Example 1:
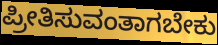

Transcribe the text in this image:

ಪ್ರೀತಿಸುವಂತಾಗಬೇಕು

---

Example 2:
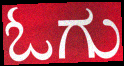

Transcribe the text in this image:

ಓಗು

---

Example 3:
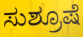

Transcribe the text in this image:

ಸುಶ್ರೂಷೆ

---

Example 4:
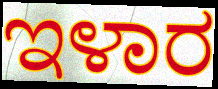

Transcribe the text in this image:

ಇಳಾರ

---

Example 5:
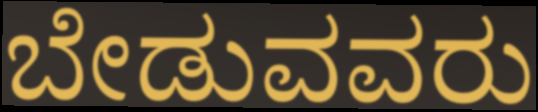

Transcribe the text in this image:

ಬೇಡುವವರು